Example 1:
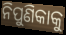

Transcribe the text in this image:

ନିପୁଣିକାକୁ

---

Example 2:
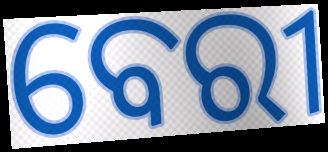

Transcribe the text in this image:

ବେରୀ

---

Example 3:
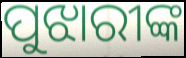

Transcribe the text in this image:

ପୁଝାରୀଙ୍କ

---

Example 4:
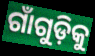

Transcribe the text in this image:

ଗାଁଗୁଡ଼ିକୁ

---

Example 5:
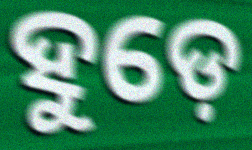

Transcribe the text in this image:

ହୁଡ଼େ